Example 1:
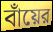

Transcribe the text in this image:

বাঁয়ের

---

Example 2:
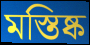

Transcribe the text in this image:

মস্তিষ্ক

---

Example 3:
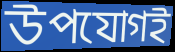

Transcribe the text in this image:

উপযোগই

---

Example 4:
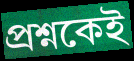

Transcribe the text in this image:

প্রশ্নকেই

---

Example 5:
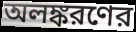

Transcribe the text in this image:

অলঙ্করণের